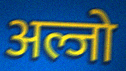
अल्जो